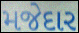
મજેદાર